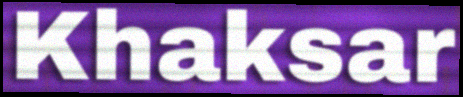
Khaksar